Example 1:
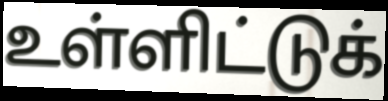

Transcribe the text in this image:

உள்ளிட்டுக்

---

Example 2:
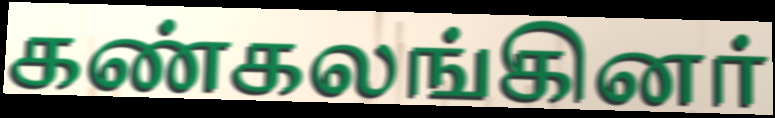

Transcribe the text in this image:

கண்கலங்கினர்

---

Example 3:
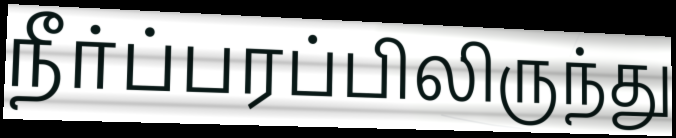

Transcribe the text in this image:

நீர்ப்பரப்பிலிருந்து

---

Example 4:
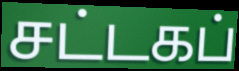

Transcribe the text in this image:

சட்டகப்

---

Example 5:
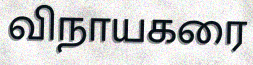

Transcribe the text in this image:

விநாயகரை